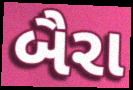
બૈરા